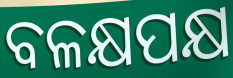
ବଳକ୍ଷପକ୍ଷ